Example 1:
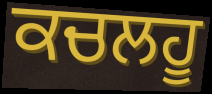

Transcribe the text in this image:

ਕਚਲਹੂ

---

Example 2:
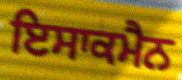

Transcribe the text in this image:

ਇਸਾਕਮੈਨ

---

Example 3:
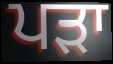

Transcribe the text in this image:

ਪੜਾ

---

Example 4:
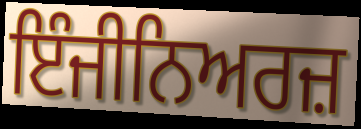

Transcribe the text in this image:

ਇੰਜੀਨਿਅਰਜ਼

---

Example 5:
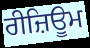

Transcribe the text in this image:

ਰੀਜ਼ਿਊਮ